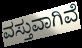
ವಸ್ತುವಾಗಿವೆ